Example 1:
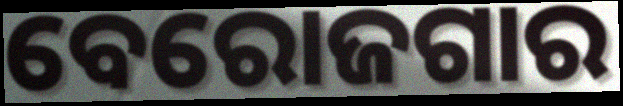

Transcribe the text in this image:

ବେରୋଜଗାର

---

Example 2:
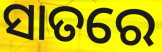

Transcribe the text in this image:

ସାତରେ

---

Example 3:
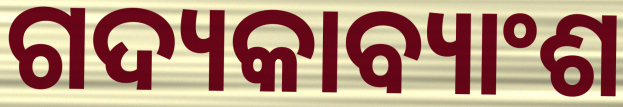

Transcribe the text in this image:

ଗଦ୍ୟକାବ୍ୟାଂଶ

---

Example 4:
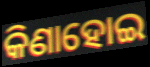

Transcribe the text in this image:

କିଣାହୋଇ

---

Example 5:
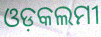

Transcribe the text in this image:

ଓଡ଼କଲମୀ